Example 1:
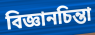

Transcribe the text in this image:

বিজ্ঞানচিন্তা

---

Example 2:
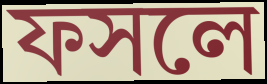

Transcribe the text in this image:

ফসলে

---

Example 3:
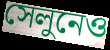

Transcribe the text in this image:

সেলুনেও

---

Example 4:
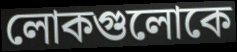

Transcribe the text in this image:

লোকগুলোকে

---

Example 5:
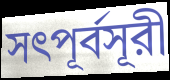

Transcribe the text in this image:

সৎপূর্বসূরী